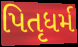
પિતૃધર્મ